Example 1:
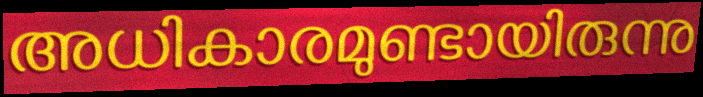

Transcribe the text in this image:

അധികാരമുണ്ടായിരുന്നു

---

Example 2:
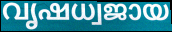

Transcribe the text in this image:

വൃഷധ്വജായ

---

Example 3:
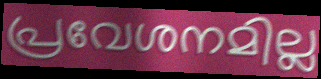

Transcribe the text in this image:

പ്രവേശനമില്ല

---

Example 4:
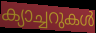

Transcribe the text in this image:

ക്യാച്ചറുകൾ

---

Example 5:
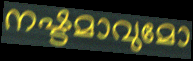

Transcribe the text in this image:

നഷ്ടമാവുമോ